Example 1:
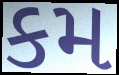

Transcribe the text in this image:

કમ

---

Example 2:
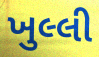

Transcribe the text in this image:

ખુલ્લી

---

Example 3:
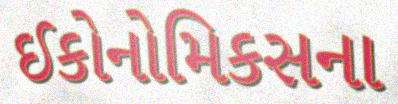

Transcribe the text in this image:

ઈકોનોમિકસના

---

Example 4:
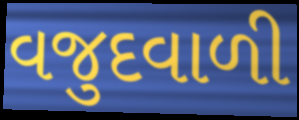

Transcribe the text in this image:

વજુદવાળી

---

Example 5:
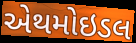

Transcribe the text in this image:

એથમોઇડલ